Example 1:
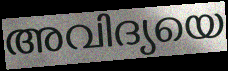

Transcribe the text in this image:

അവിദ്യയെ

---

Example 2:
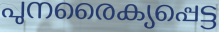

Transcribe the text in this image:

പുനരൈക്യപ്പെട്ട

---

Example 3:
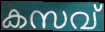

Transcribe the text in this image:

കസവ്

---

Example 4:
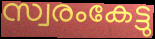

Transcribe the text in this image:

സ്വരംകേട്ടു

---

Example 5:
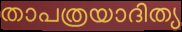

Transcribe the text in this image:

താപത്രയാദിത്യ